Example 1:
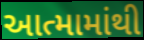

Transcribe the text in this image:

આત્મામાંથી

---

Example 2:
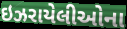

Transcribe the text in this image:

ઇઝરાયેલીઓના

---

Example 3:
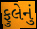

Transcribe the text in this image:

ફુલેનું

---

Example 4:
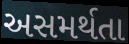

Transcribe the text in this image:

અસમર્થતા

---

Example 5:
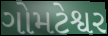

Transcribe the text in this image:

ગોમટેશ્વર